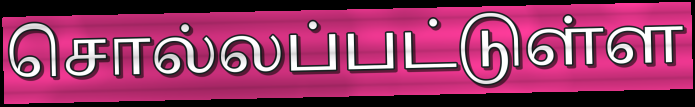
சொல்லப்பட்டுள்ள